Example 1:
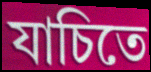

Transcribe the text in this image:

যাচিতে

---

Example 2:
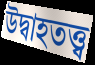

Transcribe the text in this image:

উদ্বাহতত্ত্ব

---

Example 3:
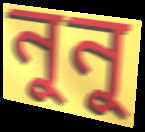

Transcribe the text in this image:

নুনু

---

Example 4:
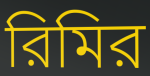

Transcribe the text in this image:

রিমির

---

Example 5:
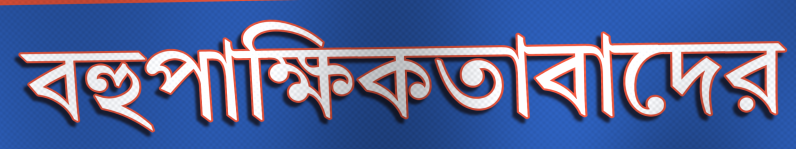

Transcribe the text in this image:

বহুপাক্ষিকতাবাদের